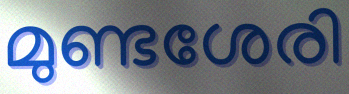
മുണ്ടശേരി